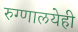
रुग्णालयेही